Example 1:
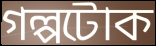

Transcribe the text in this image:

গল্পটোক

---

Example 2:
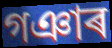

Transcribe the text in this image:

গঞাৰ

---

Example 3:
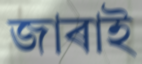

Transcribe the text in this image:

জাৰাই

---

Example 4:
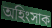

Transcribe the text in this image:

অহিংসাক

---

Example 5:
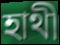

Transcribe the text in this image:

হাথী